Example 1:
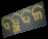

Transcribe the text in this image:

ବହୁଦଳ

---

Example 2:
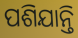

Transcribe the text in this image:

ପଶିଯାନ୍ତି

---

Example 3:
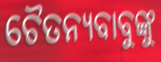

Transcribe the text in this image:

ଚୈତନ୍ୟବାବୁଙ୍କୁ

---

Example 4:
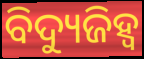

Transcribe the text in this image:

ବିଦ୍ୟୁଜିହ୍ୱ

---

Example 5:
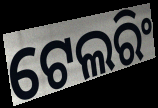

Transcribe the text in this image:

ଟେଲରିଂ